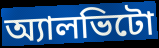
অ্যালভিটো